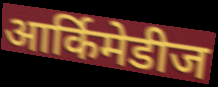
आर्किमेडीज